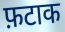
फ़टाक